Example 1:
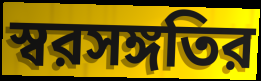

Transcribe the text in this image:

স্বরসঙ্গতির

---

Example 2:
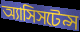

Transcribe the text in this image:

অ্যাসিসটেন্স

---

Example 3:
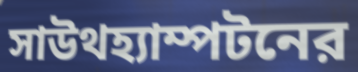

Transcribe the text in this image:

সাউথহ্যাম্পটনের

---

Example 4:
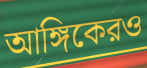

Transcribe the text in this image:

আঙ্গিকেরও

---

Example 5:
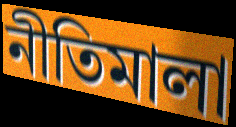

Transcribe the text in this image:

নীতিমালা